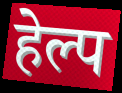
हेल्प